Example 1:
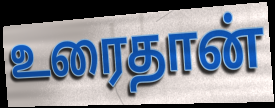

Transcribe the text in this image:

உரைதான்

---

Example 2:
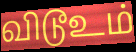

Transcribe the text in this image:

விடூஉம்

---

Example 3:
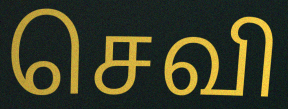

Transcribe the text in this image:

செவி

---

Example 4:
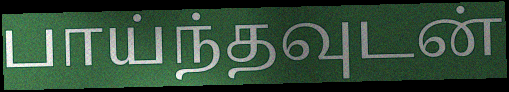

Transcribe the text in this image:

பாய்ந்தவுடன்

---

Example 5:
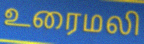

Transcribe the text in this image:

உரைமலி